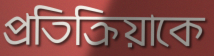
প্রতিক্রিয়াকে